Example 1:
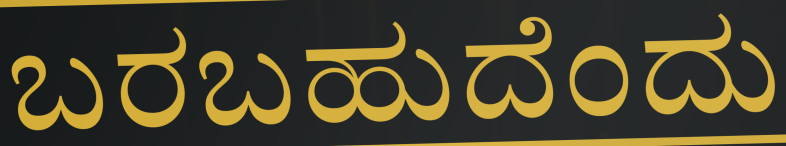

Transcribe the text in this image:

ಬರಬಹುದೆಂದು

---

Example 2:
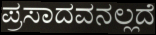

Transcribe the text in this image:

ಪ್ರಸಾದವನಲ್ಲದೆ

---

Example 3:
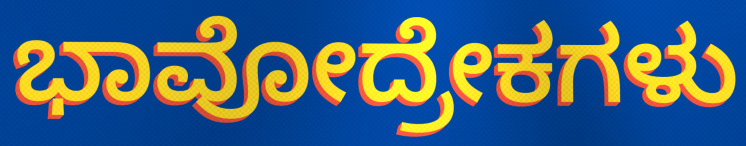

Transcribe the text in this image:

ಭಾವೋದ್ರೇಕಗಳು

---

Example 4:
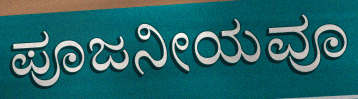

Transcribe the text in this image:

ಪೂಜನೀಯವೂ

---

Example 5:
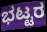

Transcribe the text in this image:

ಭಟ್ಟರ